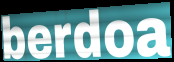
berdoa